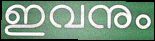
ഇവനും